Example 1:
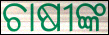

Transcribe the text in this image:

ଚାଷୀଙ୍କ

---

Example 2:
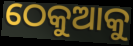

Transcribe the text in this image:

ଠେକୁଆକୁ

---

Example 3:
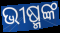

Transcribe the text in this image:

ଭୀଷ୍ମଙ୍କ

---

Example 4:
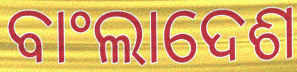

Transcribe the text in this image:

ବାଂଲାଦେଶ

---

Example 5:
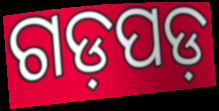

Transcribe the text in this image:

ଗଡ଼ପଡ଼